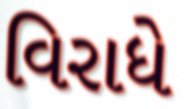
વિરાધે